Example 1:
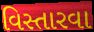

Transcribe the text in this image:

વિસ્તારવા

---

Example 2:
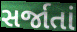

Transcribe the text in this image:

સર્જાતાં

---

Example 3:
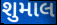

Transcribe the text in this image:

શુમાલ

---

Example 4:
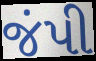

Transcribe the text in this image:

જંપી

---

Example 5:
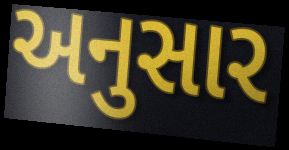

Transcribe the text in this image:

અનુસાર